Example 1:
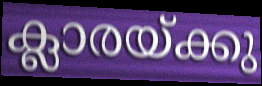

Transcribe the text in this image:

ക്ലാരയ്ക്കു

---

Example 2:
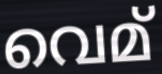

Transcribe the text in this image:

വെമ്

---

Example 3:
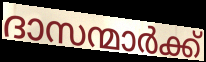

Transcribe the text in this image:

ദാസന്മാർക്ക്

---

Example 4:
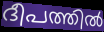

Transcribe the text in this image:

ദീപത്തിൽ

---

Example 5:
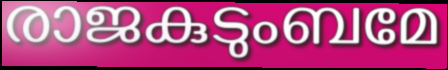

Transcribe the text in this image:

രാജകുടുംബമേ